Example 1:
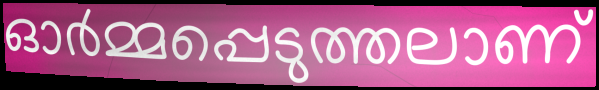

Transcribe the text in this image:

ഓർമ്മപ്പെടുത്തലാണ്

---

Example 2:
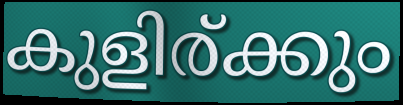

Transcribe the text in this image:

കുളിര്ക്കും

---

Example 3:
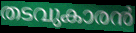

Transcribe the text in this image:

തടവുകാരൻ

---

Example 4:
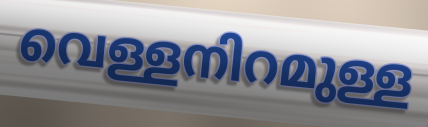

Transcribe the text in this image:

വെള്ളനിറമുള്ള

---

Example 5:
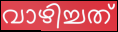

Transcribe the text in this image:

വാഴിച്ചത്